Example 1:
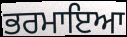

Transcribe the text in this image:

ਭਰਮਾਇਆ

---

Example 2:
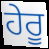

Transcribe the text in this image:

ਹੇਰੂ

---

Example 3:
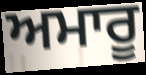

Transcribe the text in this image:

ਅਮਾਰੂ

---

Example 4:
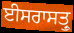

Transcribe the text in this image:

ਈਸਰਾਸਤ੍ਰੁ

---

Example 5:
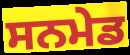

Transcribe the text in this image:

ਸਨਮੇਡ